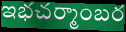
ఇభచర్మాంబర